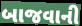
બાજવાની